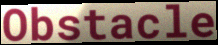
Obstacle